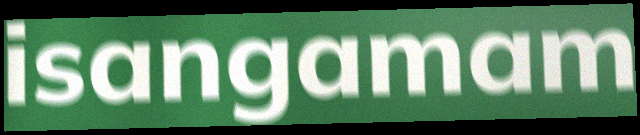
isangamam